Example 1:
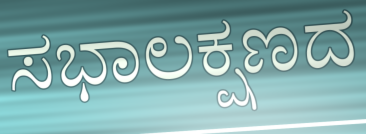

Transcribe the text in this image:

ಸಭಾಲಕ್ಷಣದ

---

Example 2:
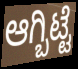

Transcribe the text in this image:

ಆಗ್ಬಿಟ್ಟೆ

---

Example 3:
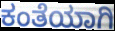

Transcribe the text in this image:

ಕಂತೆಯಾಗಿ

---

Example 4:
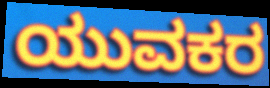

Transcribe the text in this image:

ಯುವಕರ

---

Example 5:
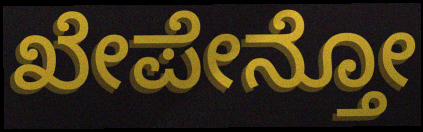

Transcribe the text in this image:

ಖೇಪೇನ್ತೋ